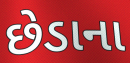
છેડાના